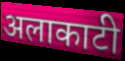
अलाकाटी